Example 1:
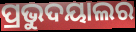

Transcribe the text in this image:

ପ୍ରଭୁଦୟାଲର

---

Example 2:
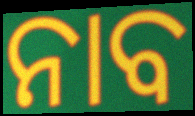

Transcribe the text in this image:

ନାବ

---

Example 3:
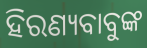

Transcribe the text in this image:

ହିରଣ୍ୟବାବୁଙ୍କ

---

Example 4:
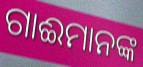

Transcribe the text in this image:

ଗାଈମାନଙ୍କ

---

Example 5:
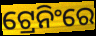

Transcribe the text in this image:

ଟ୍ରେନିଂରେ